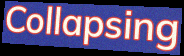
Collapsing